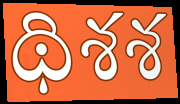
థిశశ